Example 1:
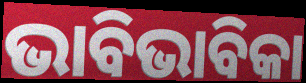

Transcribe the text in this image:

ଭାବିଭାବିକା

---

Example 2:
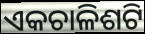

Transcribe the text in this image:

ଏକଚାଳିଶଟି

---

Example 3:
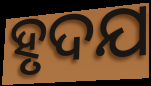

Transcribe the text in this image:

ହୃଦଯ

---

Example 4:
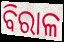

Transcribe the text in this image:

ବିରାଳ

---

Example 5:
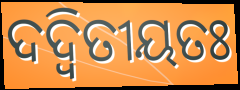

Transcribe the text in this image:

ଦଦ୍ୱିତୀୟତଃ